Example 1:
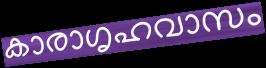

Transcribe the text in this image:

കാരാഗൃഹവാസം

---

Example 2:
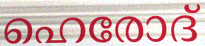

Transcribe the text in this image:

ഹെരോദ്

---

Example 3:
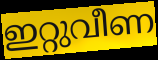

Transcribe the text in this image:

ഇറ്റുവീണ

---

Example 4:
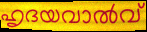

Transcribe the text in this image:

ഹൃദയവാൽവ്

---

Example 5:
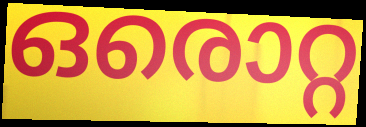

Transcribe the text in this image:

ഒരൊറ്റ